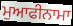
ਮੁਆਫੀਨਾਮਾ